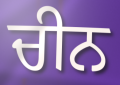
ਚੀਨ